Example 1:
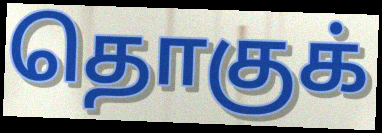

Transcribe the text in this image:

தொகுக்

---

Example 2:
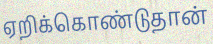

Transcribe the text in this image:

ஏறிக்கொண்டுதான்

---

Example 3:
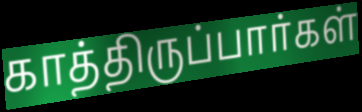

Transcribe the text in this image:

காத்திருப்பார்கள்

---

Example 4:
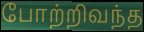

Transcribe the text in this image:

போற்றிவந்த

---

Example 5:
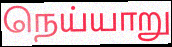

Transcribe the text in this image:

நெய்யாறு